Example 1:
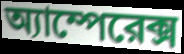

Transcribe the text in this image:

অ্যাম্পেরেক্স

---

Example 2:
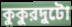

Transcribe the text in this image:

কুকুরদুটো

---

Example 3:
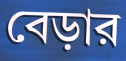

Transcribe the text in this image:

বেড়ার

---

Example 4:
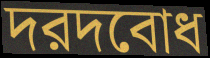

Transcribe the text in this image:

দরদবোধ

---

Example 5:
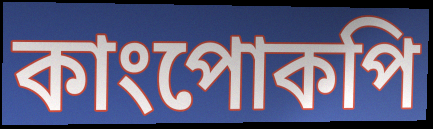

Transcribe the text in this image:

কাংপোকপি